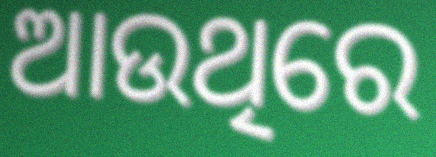
ଆଉଥିରେ